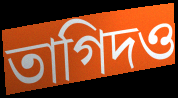
তাগিদও